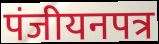
पंजीयनपत्र